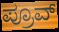
ಪ್ರೂವ್